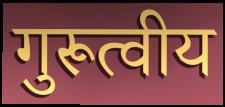
गुरूत्वीय